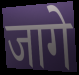
जागे